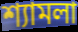
শ্যামলা